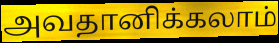
அவதானிக்கலாம்